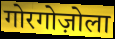
गोरगोज़ोला